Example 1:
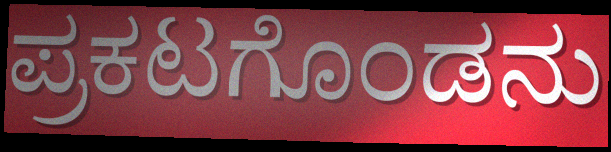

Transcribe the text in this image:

ಪ್ರಕಟಗೊಂಡನು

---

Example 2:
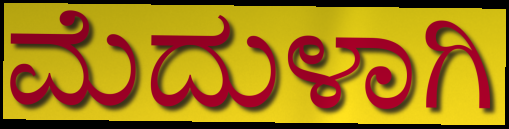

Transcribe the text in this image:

ಮೆದುಳಾಗಿ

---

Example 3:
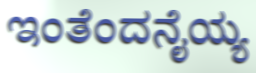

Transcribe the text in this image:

ಇಂತೆಂದನೈಯ್ಯ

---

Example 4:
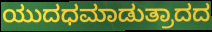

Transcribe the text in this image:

ಯುದಧಮಾಡುತ್ರಾದದ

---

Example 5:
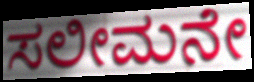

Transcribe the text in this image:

ಸಲೀಮನೇ